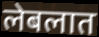
लेबलात